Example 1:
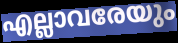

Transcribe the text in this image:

എല്ലാവരേയും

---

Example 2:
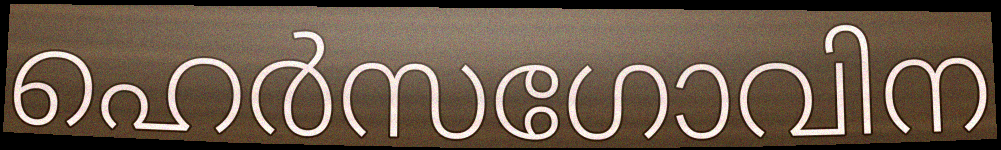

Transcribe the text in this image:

ഹെർസഗോവിന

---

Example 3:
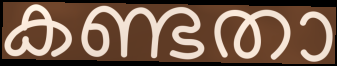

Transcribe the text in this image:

കണ്ടതാ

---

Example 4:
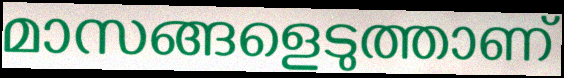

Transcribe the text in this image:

മാസങ്ങളെടുത്താണ്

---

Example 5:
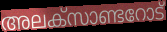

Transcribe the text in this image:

അലക്സാണ്ടറോട്